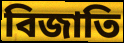
বিজাতি